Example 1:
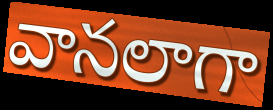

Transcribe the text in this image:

వానలాగా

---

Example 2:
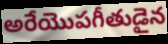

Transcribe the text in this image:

అరేయొపగీతుడైన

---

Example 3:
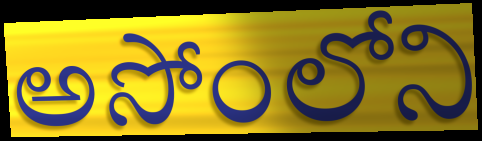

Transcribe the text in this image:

అసోంలోని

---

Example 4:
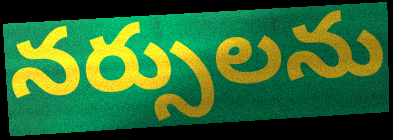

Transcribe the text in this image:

నర్సులను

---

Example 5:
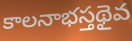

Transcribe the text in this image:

కాలనాభస్తథైవ